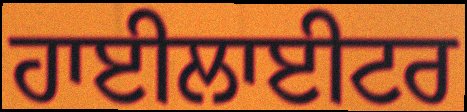
ਹਾਈਲਾਈਟਰ